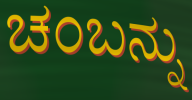
ಚಂಬನ್ನು